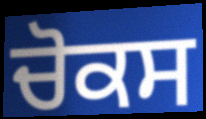
ਚੋਕਸ